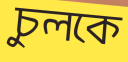
চুলকে